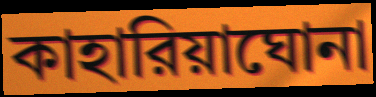
কাহারিয়াঘোনা